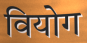
वियोग